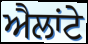
ਐਲਾਂਟੇ